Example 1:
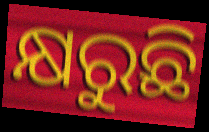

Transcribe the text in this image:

କ୍ଷରୁଛି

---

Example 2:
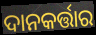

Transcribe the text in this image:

ଦାନକର୍ତ୍ତାର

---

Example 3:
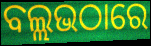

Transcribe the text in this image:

ବଲ୍ଲଭଠାରେ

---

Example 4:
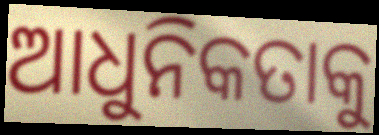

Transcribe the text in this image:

ଆଧୁନିକତାକୁ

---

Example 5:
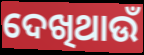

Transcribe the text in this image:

ଦେଖିଥାଉଁ